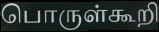
பொருள்கூறி